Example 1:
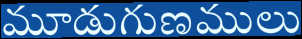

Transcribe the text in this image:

మూడుగుణములు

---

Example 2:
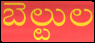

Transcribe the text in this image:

బెల్టుల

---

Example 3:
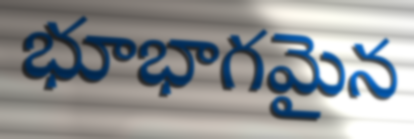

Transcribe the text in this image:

భూభాగమైన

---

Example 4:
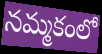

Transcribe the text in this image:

నమ్మకంలో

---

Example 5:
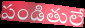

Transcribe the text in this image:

పండితులే